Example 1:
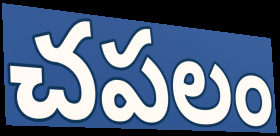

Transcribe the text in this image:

చపలం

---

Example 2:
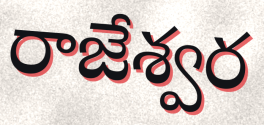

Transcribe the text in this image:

రాజేశ్వర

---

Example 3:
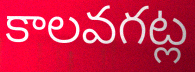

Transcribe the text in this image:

కాలవగట్ల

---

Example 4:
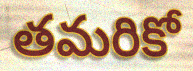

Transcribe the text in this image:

తమరికో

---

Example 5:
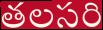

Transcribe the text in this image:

తలసరి